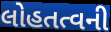
લોહતત્વની